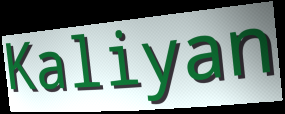
Kaliyan